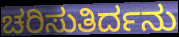
ಚರಿಸುತಿರ್ದನು